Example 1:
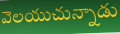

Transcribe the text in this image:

వెలయుచున్నాడు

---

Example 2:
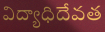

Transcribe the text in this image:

విద్యాధిదేవత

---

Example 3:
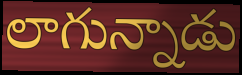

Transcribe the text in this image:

లాగున్నాడు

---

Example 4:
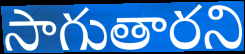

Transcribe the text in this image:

సాగుతారని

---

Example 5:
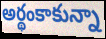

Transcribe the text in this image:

అర్థంకాకున్నా